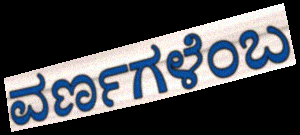
ವರ್ಣಗಳೆಂಬ